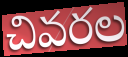
చివరల